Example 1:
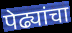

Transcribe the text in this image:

पेढ्यांचा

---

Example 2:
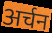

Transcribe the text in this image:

अर्चन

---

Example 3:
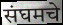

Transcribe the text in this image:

संघमचे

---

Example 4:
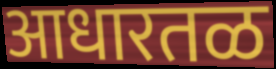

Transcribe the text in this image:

आधारतळ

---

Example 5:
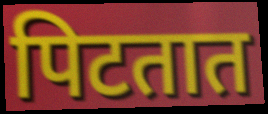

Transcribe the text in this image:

पिटतात